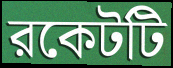
রকেটটি